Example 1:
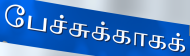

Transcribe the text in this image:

பேச்சுக்காகக்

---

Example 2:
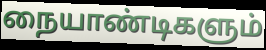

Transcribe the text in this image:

நையாண்டிகளும்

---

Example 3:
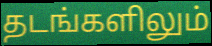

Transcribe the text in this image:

தடங்களிலும்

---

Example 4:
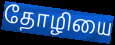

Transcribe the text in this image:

தோழியை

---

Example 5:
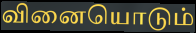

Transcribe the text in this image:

வினையொடும்